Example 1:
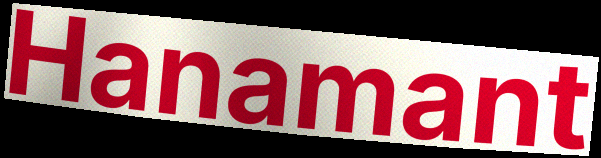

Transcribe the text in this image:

Hanamant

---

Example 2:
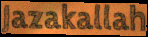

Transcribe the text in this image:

Jazakallah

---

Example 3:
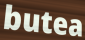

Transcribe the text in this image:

butea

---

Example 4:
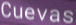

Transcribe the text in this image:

Cuevas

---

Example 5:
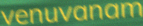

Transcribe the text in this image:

venuvanam